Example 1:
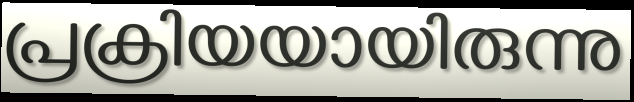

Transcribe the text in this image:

പ്രക്രിയയായിരുന്നു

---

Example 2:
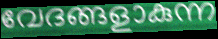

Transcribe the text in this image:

വേദങ്ങളാകുന്ന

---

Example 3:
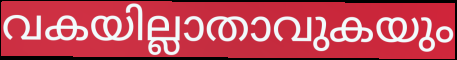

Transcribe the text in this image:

വകയില്ലാതാവുകയും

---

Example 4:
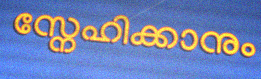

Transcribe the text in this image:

സ്നേഹിക്കാനും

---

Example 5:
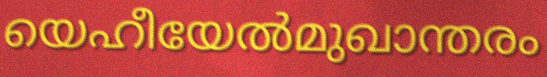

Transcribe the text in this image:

യെഹീയേൽമുഖാന്തരം